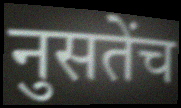
नुसतेंच